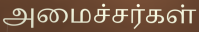
அமைச்சர்கள்